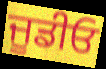
ਜੂਡੀਓ